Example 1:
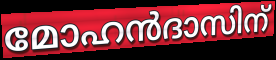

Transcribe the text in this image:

മോഹൻദാസിന്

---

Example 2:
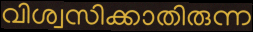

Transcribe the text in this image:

വിശ്വസിക്കാതിരുന്ന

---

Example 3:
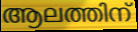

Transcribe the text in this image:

ആലത്തിന്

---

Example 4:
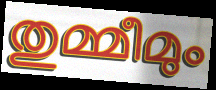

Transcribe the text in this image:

തുമ്മീമും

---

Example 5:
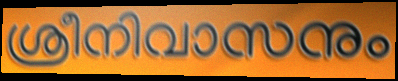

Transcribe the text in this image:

ശ്രീനിവാസനും